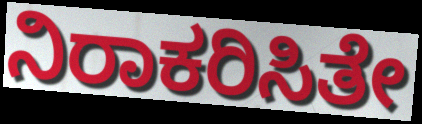
ನಿರಾಕರಿಸಿತೇ